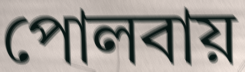
পোলবায়